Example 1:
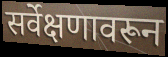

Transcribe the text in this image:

सर्वेक्षणावरून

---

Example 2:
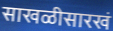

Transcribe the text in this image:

साखळीसारखं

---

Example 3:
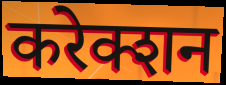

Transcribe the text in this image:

करेक्शन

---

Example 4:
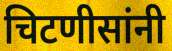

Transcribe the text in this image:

चिटणीसांनी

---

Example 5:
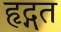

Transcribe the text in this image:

हृद्गत